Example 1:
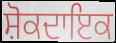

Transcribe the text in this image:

ਸ਼ੋਕਦਾਇਕ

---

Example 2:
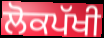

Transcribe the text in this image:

ਲੋਕਪੱਖੀ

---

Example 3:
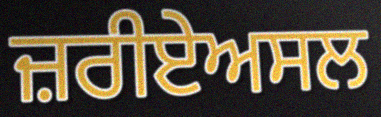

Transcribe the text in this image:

ਜ਼ਰੀਏਅਸਲ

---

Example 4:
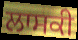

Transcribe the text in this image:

ਲਾਸਕੀ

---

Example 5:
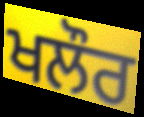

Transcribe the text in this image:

ਖਲੌਰ